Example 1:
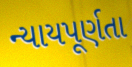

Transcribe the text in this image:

ન્યાયપૂર્ણતા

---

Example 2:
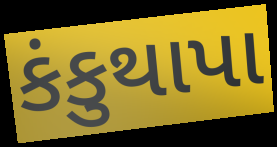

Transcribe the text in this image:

કંકુથાપા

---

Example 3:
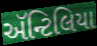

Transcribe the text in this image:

ઍન્ટિલિયા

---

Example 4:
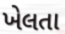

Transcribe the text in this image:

ખેલતા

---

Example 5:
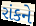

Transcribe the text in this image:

રાંકને